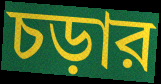
চড়ার